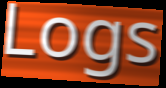
Logs